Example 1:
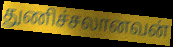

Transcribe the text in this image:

துணிச்சலானவன்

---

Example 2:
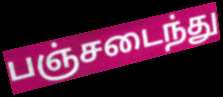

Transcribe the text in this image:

பஞ்சடைந்து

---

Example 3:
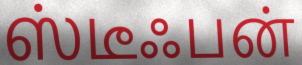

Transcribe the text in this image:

ஸ்டீஃபன்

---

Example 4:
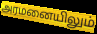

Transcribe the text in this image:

அரமனையிலும்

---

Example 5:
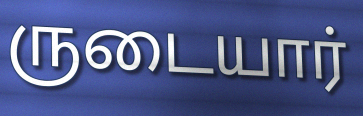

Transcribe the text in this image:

ருடையார்